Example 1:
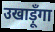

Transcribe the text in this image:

उखाड़ूँगा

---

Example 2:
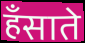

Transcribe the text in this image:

हँसाते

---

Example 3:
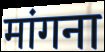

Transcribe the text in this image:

मांगना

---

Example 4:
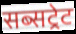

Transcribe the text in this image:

सब्सट्रेट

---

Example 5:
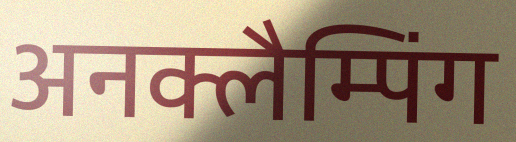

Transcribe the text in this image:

अनक्लैम्पिंग